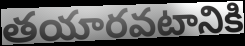
తయారవటానికి